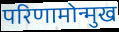
परिणामोन्मुख